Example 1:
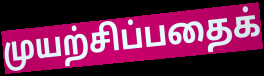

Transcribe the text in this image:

முயற்சிப்பதைக்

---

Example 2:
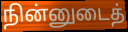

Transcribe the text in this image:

நின்னுடைத்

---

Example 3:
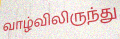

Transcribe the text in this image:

வாழ்விலிருந்து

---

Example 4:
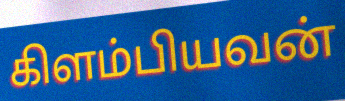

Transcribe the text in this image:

கிளம்பியவன்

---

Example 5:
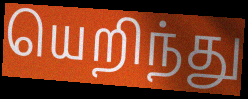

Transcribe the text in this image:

யெறிந்து